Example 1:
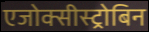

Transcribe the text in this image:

एजोक्सीस्ट्रोबिन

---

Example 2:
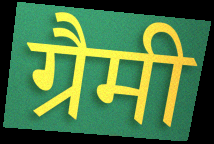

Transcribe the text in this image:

ग्रैमी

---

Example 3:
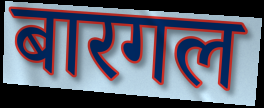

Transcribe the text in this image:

बारगल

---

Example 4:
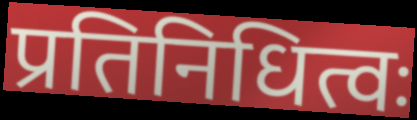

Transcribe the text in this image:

प्रतिनिधित्वः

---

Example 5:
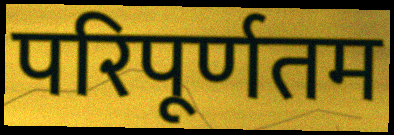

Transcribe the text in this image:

परिपूर्णतम